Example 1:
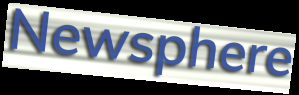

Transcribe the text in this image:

Newsphere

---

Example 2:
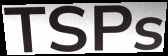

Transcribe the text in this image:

TSPs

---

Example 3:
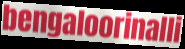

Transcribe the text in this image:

bengaloorinalli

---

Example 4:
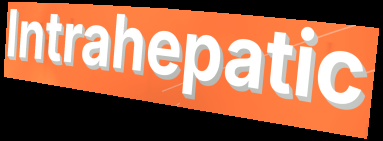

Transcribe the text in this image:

Intrahepatic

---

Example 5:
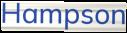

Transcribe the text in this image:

Hampson